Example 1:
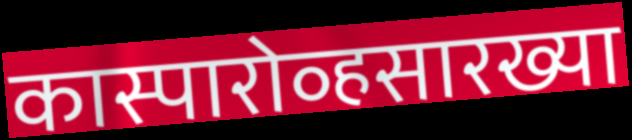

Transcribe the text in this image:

कास्पारोव्हसारख्या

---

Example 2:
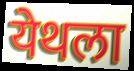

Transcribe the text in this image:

येथला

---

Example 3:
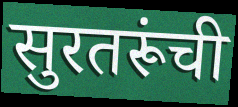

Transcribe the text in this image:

सुरतरूंची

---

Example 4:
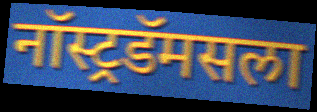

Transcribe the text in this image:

नॉस्ट्रडॅमसला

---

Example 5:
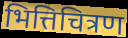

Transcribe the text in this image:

भित्तिचित्रण